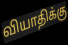
வியாதிக்கு